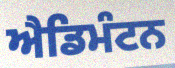
ਐਡਿਮੰਟਨ